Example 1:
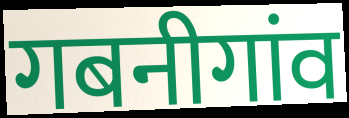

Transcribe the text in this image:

गबनीगांव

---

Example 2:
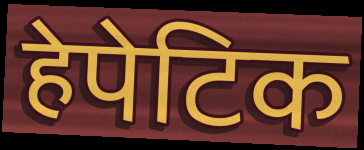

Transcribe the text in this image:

हेपेटिक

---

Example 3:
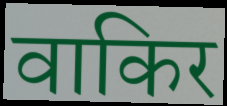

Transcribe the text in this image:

वाकिर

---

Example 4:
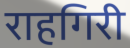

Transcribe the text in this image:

राहगिरी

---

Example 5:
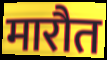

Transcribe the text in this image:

मारौत